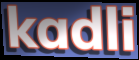
kadli